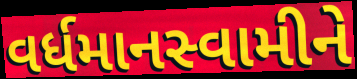
વર્ધમાનસ્વામીને